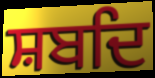
ਸ਼ਬਦਿ